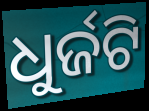
ଧୁର୍ଜଟି